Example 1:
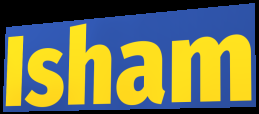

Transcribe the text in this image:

Isham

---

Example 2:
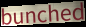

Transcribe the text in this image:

bunched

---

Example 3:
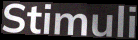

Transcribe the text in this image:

Stimuli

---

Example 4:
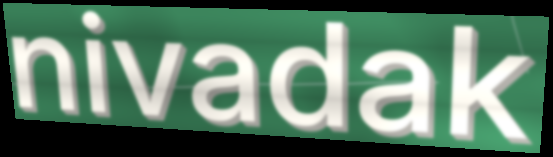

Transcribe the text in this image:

nivadak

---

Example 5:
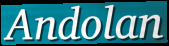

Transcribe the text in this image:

Andolan